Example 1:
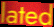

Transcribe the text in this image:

lated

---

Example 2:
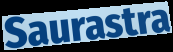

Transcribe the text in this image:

Saurastra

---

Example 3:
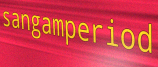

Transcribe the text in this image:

sangamperiod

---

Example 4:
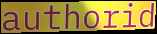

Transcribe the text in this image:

authorid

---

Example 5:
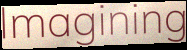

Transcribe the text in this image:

Imagining